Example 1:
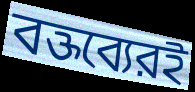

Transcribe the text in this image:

বক্তব্যেরই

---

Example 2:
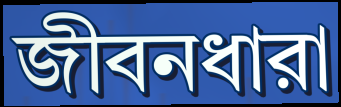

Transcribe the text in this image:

জীবনধারা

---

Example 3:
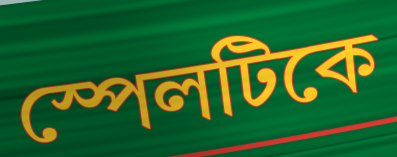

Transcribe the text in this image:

স্পেলটিকে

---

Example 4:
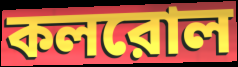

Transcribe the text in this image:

কলরোল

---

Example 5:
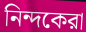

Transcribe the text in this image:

নিন্দকেরা